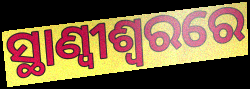
ସ୍ଥାଣ୍ୱୀଶ୍ୱରରେ